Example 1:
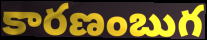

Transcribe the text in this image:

కారణంబుగ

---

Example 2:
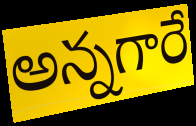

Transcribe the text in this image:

అన్నగారే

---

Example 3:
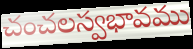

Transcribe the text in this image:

చంచలస్వభావము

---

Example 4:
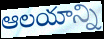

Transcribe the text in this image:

ఆలయాన్ని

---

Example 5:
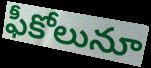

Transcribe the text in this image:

ఫీకోలునూ